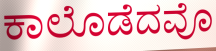
ಕಾಲೊಡೆದವೊ